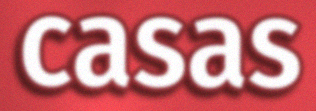
casas